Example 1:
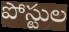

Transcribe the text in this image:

పోస్టుల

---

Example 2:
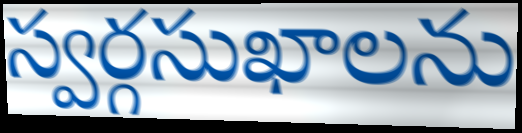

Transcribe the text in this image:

స్వర్గసుఖాలను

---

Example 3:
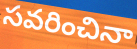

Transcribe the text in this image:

సవరించినా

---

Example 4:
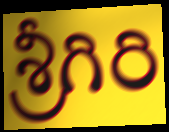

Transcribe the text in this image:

శ్రీగిరి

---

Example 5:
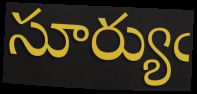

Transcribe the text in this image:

సూర్యుఁ